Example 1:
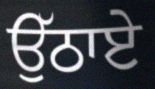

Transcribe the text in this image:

ਉੱਠਾਏ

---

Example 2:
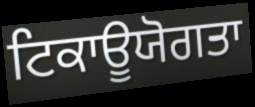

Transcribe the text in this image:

ਟਿਕਾਊਯੋਗਤਾ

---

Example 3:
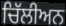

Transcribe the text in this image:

ਚਿੱਲੀਅਨ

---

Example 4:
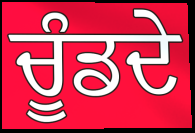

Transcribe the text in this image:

ਚੂੰਡਦੇ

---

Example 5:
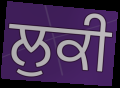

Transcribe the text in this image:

ਲੁਕੀ